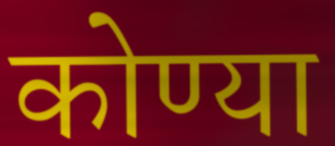
कोण्या